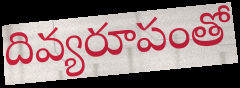
దివ్యరూపంతో